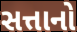
સત્તાનો